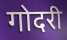
गोदरी